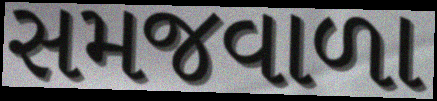
સમજવાળા